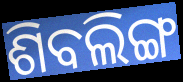
ଶିବଲିଙ୍ଗ